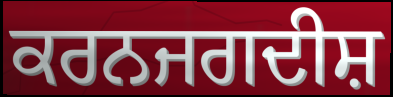
ਕਰਨਜਗਦੀਸ਼